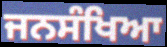
ਜਨਸੰਖਿਆ